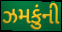
ઝમકુંની